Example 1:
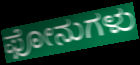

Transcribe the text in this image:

ಫೋನುಗಳು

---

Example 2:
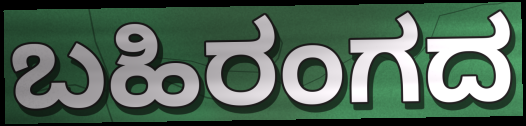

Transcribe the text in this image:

ಬಹಿರಂಗದ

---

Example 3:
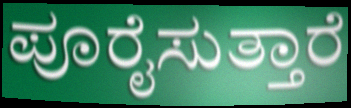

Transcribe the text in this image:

ಪೂರೈಸುತ್ತಾರೆ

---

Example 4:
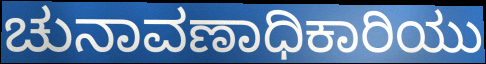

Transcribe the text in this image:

ಚುನಾವಣಾಧಿಕಾರಿಯು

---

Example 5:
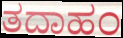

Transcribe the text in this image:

ತದಾಹಂ